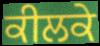
ਕੀਲਕੇ